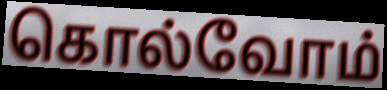
கொல்வோம்